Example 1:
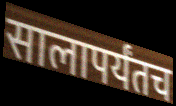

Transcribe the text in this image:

सालापर्यंतच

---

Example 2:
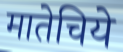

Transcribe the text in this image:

मातेचिये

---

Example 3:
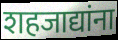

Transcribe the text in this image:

शहजाद्यांना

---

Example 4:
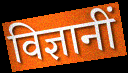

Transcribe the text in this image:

विज्ञानीं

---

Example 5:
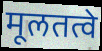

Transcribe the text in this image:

मूलतत्वे